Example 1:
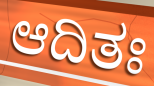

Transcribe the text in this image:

ಆದಿತಃ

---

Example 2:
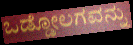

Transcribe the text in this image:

ಒಡ್ಡೋಲಗವನ್ನು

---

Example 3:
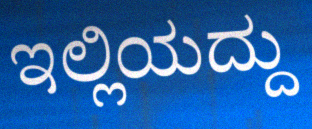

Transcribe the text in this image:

ಇಲ್ಲಿಯದ್ದು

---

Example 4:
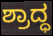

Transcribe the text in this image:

ಶ್ರಾದ್ಧ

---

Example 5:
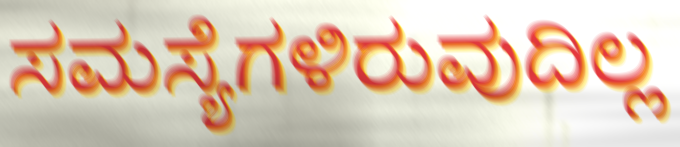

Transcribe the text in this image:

ಸಮಸ್ಯೆಗಳಿರುವುದಿಲ್ಲ